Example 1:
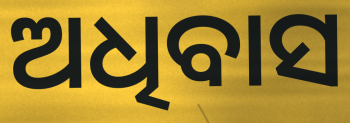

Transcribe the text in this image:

ଅଧିବାସ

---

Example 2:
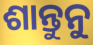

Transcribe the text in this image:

ଶାନ୍ତୁନୁ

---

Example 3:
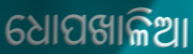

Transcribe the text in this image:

ଧୋପଖାଳିଆ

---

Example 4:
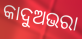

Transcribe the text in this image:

କାଦୁଅଭରା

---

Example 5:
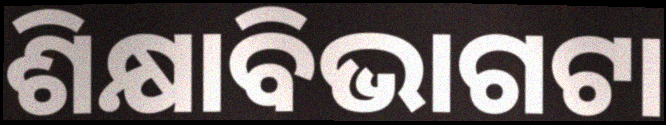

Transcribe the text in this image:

ଶିକ୍ଷାବିଭାଗଟା